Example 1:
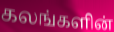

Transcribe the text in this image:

கலங்களின்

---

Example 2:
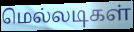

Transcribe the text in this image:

மெல்லடிகள்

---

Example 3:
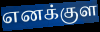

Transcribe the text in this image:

எனக்குள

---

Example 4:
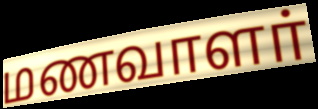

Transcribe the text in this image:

மணவாளர்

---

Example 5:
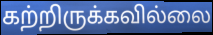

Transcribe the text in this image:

கற்றிருக்கவில்லை